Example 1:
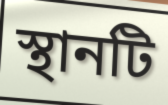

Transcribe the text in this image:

স্থানটি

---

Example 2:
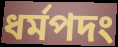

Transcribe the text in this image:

ধর্মপদং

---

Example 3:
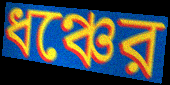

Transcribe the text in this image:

ধঞ্চের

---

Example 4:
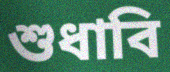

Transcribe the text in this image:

শুধাবি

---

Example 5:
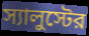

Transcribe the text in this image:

স্যালুস্টের